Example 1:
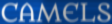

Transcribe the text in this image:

CAMELS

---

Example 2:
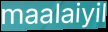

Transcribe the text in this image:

maalaiyil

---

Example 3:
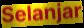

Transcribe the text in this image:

Selanjar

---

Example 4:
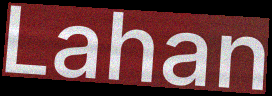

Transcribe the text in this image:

Lahan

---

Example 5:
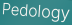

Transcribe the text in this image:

Pedology